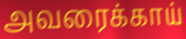
அவரைக்காய்